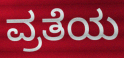
ವ್ರತೆಯ